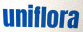
uniflora